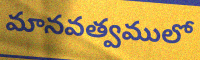
మానవత్వములో